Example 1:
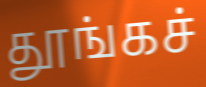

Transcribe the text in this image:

தூங்கச்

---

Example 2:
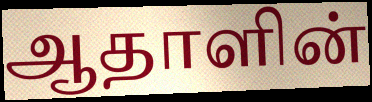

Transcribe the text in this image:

ஆதாளின்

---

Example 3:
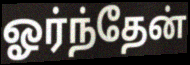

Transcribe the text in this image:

ஓர்ந்தேன்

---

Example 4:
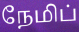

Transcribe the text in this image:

நேமிப்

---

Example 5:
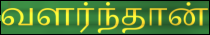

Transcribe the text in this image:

வளர்ந்தான்